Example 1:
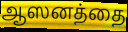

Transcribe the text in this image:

ஆஸனத்தை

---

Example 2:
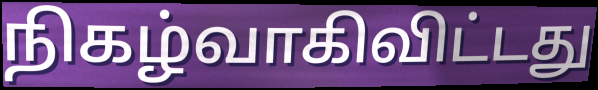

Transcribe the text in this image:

நிகழ்வாகிவிட்டது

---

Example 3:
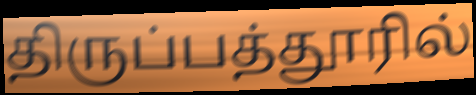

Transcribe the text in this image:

திருப்பத்தூரில்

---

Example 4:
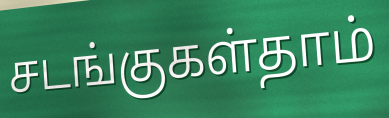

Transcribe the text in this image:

சடங்குகள்தாம்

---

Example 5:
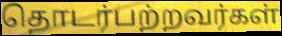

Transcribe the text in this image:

தொடர்பற்றவர்கள்